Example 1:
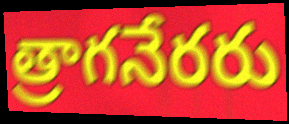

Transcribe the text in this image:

త్రాగనేరరు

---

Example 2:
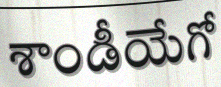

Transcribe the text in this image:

శాండీయేగో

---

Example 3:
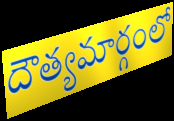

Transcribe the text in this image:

దౌత్యమార్గంలో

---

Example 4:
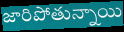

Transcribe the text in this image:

జారిపోతున్నాయి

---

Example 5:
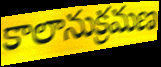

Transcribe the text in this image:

కాలానుక్రమణ